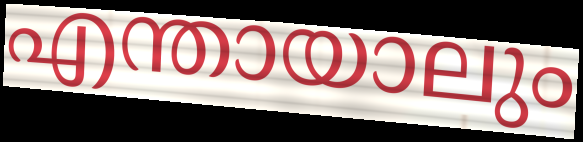
എന്തായാലും